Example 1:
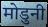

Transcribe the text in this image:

मोडुनी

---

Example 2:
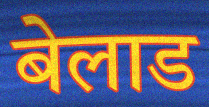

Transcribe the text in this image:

बेलाड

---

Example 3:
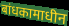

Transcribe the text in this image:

बांधकामाधीन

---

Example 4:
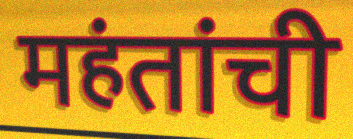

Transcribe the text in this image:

महंतांची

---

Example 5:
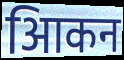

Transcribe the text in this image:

आिकन